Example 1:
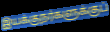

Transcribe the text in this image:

இயக்குநர்களுக்குப்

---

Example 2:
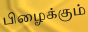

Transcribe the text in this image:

பிழைக்கும்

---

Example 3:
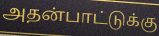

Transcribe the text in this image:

அதன்பாட்டுக்கு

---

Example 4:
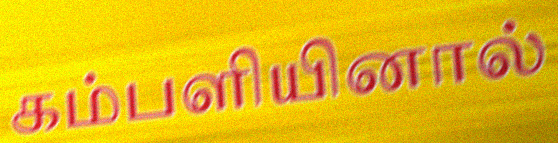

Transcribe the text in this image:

கம்பளியினால்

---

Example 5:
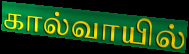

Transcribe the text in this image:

கால்வாயில்